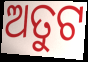
ଅତୁଟ